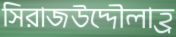
সিরাজউদ্দৌলাহ্র